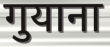
गुयाना